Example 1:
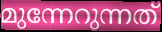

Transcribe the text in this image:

മുന്നേറുന്നത്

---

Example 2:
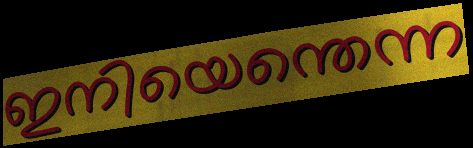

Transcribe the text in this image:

ഇനിയെന്തെന്ന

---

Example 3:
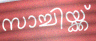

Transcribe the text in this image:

സാച്ചിയ്ക്ക്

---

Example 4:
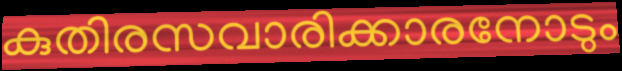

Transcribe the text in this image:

കുതിരസവാരിക്കാരനോടും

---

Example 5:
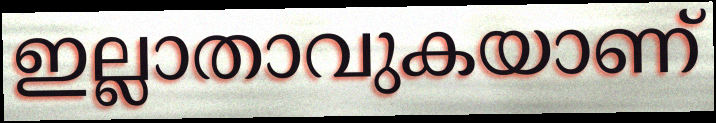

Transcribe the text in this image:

ഇല്ലാതാവുകയാണ്